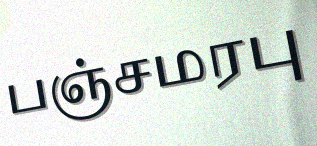
பஞ்சமரபு